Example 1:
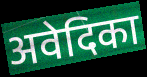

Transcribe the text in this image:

अवेदिका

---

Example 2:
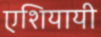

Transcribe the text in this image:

एशियायी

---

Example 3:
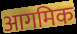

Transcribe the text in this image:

आगमिक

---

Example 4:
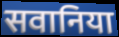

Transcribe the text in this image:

सवानिया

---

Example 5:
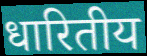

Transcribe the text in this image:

धारितीय